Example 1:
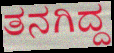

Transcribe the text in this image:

ತನಗಿದ್ದ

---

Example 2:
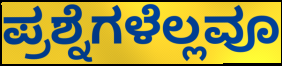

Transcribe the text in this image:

ಪ್ರಶ್ನೆಗಳೆಲ್ಲವೂ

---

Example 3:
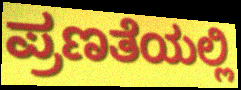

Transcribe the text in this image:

ಪ್ರಣತೆಯಲ್ಲಿ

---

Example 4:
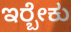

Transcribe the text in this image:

ಇರ‍್ಬೇಕು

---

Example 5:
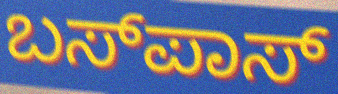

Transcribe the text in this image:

ಬಸ್‍ಪಾಸ್